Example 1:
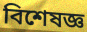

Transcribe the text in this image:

বিশেষজ্ঞ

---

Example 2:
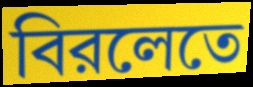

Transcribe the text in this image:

বিরলেতে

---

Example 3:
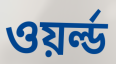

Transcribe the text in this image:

ওয়র্ল্ড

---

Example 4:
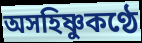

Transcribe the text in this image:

অসহিষ্ণুকণ্ঠে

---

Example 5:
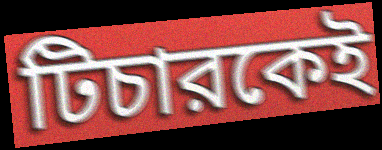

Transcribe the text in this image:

টিচারকেই